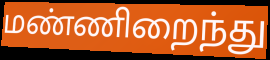
மண்ணிறைந்து